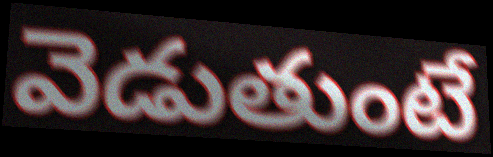
వెడుతుంటే